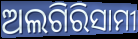
ଅଲଗିରିସାମୀ